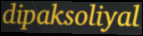
dipaksoliyal